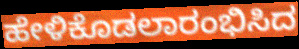
ಹೇಳಿಕೊಡಲಾರಂಭಿಸಿದ